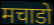
मचाडो